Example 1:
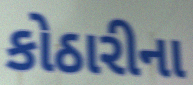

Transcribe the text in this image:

કોઠારીના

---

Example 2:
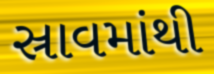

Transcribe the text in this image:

સ્રાવમાંથી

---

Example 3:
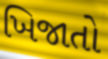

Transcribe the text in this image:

ખિજાતો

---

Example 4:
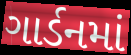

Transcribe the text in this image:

ગાર્ડનમાં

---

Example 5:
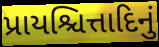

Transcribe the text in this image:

પ્રાયશ્ચિત્તાદિનું